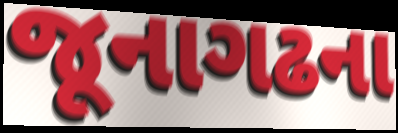
જૂનાગઢના